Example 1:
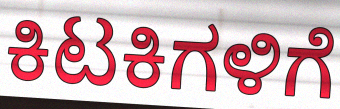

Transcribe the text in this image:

ಕಿಟಕಿಗಳಿಗೆ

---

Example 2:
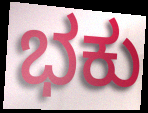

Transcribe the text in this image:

ಭಕು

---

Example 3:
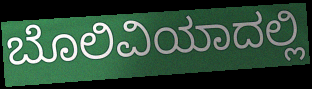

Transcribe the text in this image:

ಬೊಲಿವಿಯಾದಲ್ಲಿ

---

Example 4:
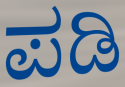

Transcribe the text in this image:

ಪಡಿ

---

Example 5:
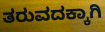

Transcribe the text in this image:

ತರುವದಕ್ಕಾಗಿ